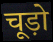
चूड़ो